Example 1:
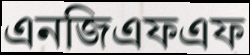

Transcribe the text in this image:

এনজিএফএফ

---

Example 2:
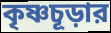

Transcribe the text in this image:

কৃষ্ণচূড়ার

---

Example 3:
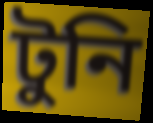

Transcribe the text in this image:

টুনি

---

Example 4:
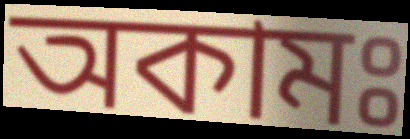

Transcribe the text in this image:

অকামঃ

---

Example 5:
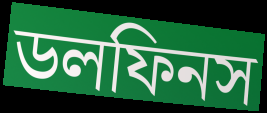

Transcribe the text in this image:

ডলফিনস